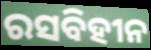
ରସବିହୀନ